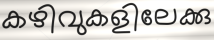
കഴിവുകളിലേക്കു